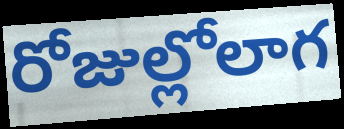
రోజుల్లోలాగ